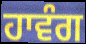
ਹਾਵੰਗ